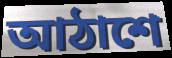
আঠাশে